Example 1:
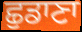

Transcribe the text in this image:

ਛੁਡਾਣਾ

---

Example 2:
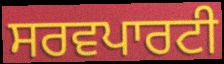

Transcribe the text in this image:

ਸਰਵਪਾਰਟੀ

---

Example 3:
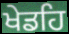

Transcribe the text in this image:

ਖੇਡਹਿ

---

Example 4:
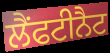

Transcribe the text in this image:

ਲੈਂਫਟੀਨੈਟ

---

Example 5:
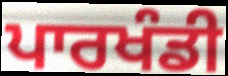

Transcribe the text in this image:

ਪਾਰਖੰਡੀ